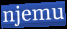
njemu